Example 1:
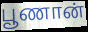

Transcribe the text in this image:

பூணான்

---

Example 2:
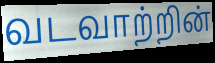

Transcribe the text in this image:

வடவாற்றின்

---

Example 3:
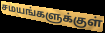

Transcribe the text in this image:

சமயங்களுக்குள்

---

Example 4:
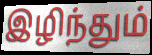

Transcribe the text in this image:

இழிந்தும்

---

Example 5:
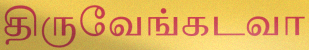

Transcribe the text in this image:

திருவேங்கடவா